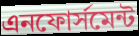
এনফোর্সমেন্ট